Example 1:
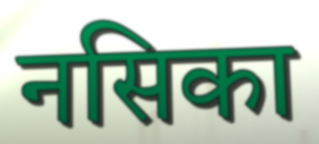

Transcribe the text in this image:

नसिका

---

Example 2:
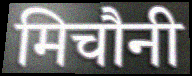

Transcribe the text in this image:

मिचौनी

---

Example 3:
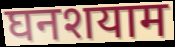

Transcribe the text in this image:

घनशयाम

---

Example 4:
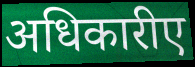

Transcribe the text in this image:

अधिकारीए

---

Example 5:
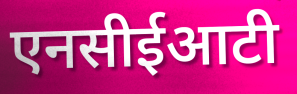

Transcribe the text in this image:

एनसीईआटी